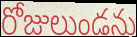
రోజులుండను